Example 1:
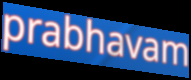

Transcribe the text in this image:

prabhavam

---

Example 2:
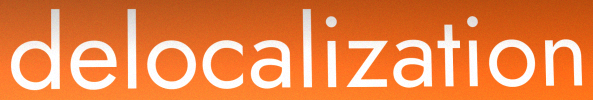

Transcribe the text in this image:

delocalization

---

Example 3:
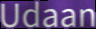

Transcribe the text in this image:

Udaan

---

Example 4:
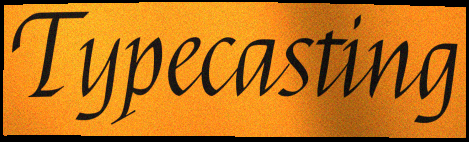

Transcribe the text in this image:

Typecasting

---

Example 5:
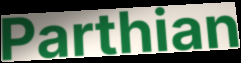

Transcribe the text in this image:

Parthian